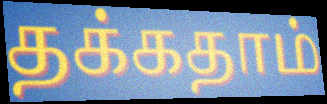
தக்கதாம்